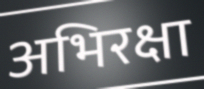
अभिरक्षा